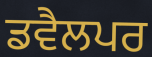
ਡਵੈਲਪਰ